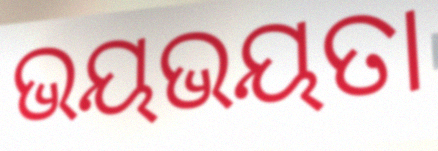
ଭୟଭୟତା